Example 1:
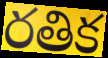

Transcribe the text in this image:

రతిక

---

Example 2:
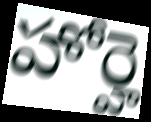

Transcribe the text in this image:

హోర్హె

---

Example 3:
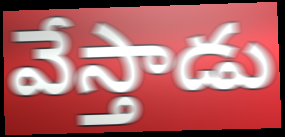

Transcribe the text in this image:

వేస్తాడు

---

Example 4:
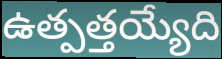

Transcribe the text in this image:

ఉత్పత్తయ్యేది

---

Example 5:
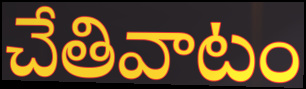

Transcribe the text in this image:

చేతివాటం